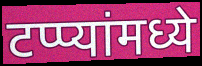
टप्प्यांमध्ये